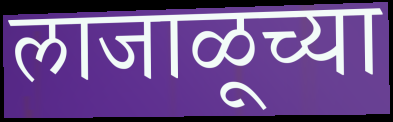
लाजाळूच्या